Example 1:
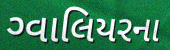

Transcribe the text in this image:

ગ્વાલિયરના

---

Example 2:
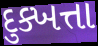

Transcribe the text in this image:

દુક્ખત્તા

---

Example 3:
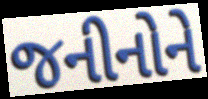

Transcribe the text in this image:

જનીનોને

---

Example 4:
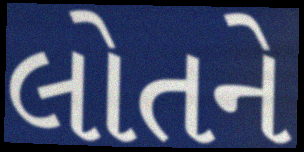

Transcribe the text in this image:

લોતને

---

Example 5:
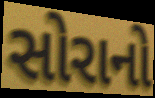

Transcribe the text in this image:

સોરાનો